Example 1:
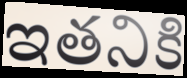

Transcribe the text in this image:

ఇతనికి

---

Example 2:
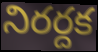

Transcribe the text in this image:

నిరర్దక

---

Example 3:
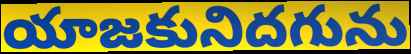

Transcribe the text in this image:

యాజకునిదగును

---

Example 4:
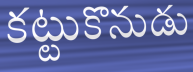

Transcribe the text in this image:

కట్టుకొనుడు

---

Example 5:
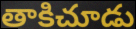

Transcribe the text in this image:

తాకిచూడు